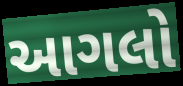
આગલો